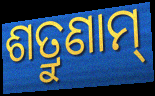
ଶତ୍ରୁଣାମ୍